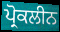
ਪ੍ਰੋਕਲੀਨ